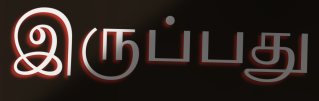
இருப்பது